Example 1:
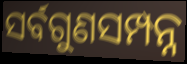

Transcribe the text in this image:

ସର୍ବଗୁଣସମ୍ପନ୍ନ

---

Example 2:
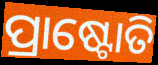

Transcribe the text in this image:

ପ୍ରାଷ୍ଟୋତି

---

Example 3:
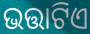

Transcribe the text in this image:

ଭତ୍ତାଟିଏ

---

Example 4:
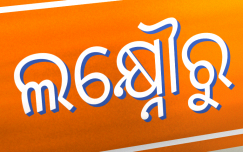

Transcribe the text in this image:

ଲକ୍ଷ୍ନୌରୁ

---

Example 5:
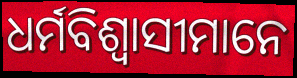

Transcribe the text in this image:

ଧର୍ମବିଶ୍ଵାସୀମାନେ